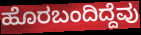
ಹೊರಬಂದಿದ್ದೆವು